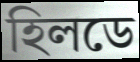
হিলডে